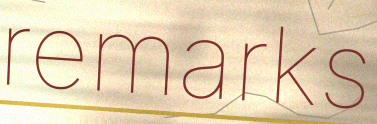
remarks